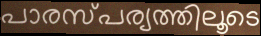
പാരസ്പര്യത്തിലൂടെ